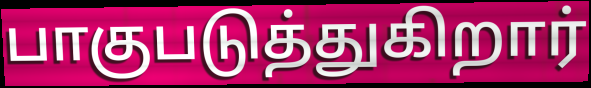
பாகுபடுத்துகிறார்